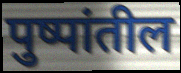
पुष्पांतील